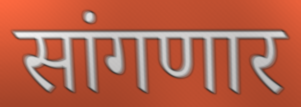
सांगणार